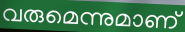
വരുമെന്നുമാണ്